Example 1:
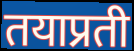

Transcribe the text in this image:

तयाप्रती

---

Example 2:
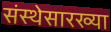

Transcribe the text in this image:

संस्थेसारख्या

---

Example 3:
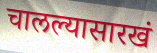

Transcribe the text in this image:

चालल्यासारखं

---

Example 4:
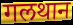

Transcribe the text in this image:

गलथान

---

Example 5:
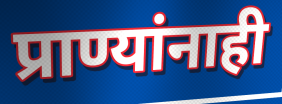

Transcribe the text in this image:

प्राण्यांनाही